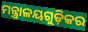
ମନ୍ତ୍ରାଳୟଗୁଡ଼ିକର